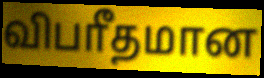
விபரீதமான